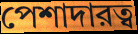
পেশাদারত্ব